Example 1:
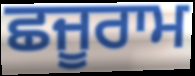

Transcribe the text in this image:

ਛਜੂਰਾਮ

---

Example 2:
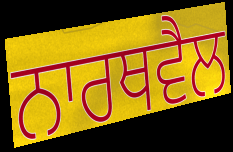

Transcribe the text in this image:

ਨਾਰਥਵੈਲ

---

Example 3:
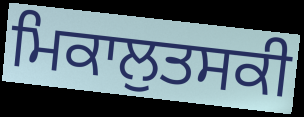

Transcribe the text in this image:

ਮਿਕਾਲੁਤਸਕੀ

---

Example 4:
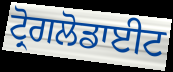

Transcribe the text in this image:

ਟ੍ਰੋਗਲੋਡਾਈਟ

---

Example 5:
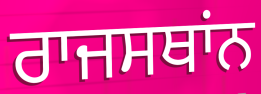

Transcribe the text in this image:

ਰਾਜਸਥਾਂਨ